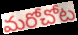
మరోచోట